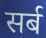
सर्ब